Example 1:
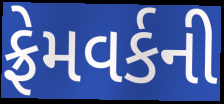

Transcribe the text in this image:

ફ્રેમવર્કની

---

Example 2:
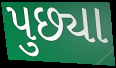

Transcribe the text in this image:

પુછ્યા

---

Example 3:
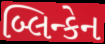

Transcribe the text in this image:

બ્લિન્કેન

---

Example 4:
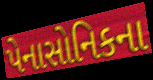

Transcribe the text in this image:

પેનાસોનિકના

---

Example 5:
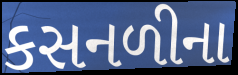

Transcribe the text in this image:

કસનળીના